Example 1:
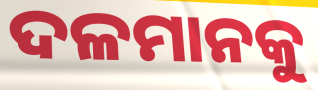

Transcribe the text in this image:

ଦଳମାନକୁ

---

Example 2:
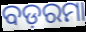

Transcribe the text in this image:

ବଡ଼ରମା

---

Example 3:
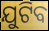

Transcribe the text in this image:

ଯୁଟିବ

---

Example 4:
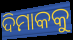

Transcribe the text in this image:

ଦିମାକକୁ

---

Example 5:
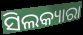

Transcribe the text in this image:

ସିଲକ୍ୟାରା